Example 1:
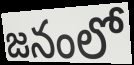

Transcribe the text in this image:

జనంలో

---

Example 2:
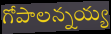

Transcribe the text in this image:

గోపాలన్నయ్య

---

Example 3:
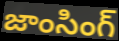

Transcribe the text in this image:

జాంసింగ్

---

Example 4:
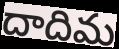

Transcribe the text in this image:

దాదిమ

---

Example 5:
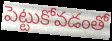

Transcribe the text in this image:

పెట్టుకోవడంతో